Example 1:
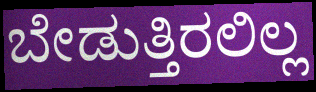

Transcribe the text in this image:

ಬೇಡುತ್ತಿರಲಿಲ್ಲ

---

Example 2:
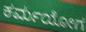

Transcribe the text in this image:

ಕರ್ಮಯೋಗ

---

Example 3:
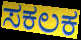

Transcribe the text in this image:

ಸಕಲಕ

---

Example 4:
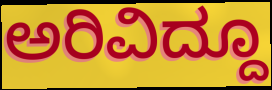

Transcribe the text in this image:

ಅರಿವಿದ್ದೂ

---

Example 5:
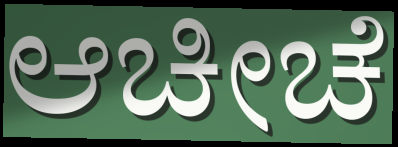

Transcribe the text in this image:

ಆಚೀಚೆ